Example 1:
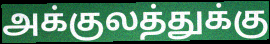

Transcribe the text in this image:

அக்குலத்துக்கு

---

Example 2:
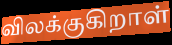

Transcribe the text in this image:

விலக்குகிறாள்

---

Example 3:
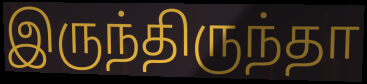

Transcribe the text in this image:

இருந்திருந்தா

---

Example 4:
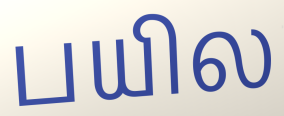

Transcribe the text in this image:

பயில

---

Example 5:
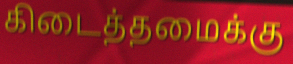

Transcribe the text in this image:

கிடைத்தமைக்கு